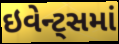
ઇવેન્ટ્સમાં